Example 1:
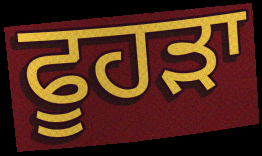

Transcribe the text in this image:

ਫੂਹੜਾ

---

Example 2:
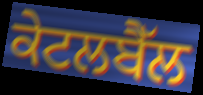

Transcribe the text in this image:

ਕੇਟਲਬੈੱਲ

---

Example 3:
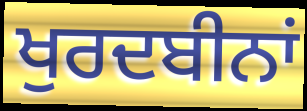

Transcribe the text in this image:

ਖੁਰਦਬੀਨਾਂ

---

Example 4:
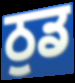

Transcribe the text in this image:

ਠੁਡ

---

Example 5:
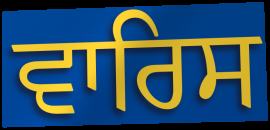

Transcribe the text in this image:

ਵਾਰਿਸ